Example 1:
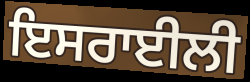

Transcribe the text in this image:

ਇਸਰਾਈਲੀ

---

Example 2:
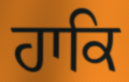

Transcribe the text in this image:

ਹਾਕਿ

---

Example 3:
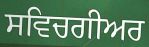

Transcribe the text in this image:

ਸਵਿਚਗੀਅਰ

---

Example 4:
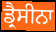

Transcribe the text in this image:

ਡ੍ਰੈਸੀਨਾ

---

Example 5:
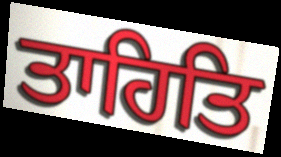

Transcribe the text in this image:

ਤਾਹਿਤਿ